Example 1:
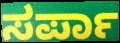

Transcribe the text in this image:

ಸರ್ಪಾ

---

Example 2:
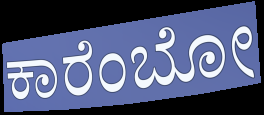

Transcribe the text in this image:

ಕಾರೆಂಬೋ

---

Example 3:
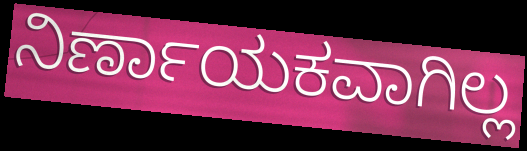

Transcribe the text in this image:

ನಿರ್ಣಾಯಕವಾಗಿಲ್ಲ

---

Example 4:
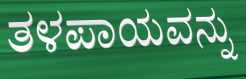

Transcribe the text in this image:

ತಳಪಾಯವನ್ನು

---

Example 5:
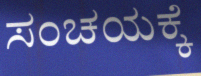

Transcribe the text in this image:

ಸಂಚಯಕ್ಕೆ